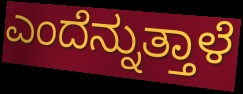
ಎಂದೆನ್ನುತ್ತಾಳೆ